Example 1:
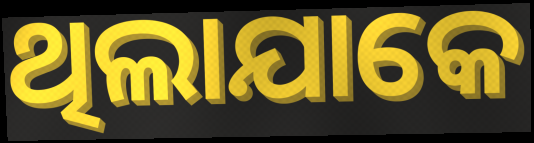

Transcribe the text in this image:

ଥିଲାଯାକେ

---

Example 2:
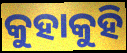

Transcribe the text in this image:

କୁହାକୁହି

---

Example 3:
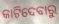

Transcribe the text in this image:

କାଟିଦେବାରୁ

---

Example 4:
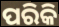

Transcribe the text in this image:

ପରିକି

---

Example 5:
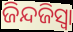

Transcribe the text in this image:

ଜିନ୍ଦଜିସ୍ୱା